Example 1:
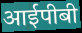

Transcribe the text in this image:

आईपीबी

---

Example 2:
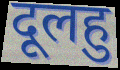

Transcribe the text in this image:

दूलहु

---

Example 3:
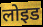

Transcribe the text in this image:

लोइड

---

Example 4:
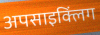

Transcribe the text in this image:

अपसाइक्लिंग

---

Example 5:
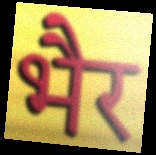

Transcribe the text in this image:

भैर